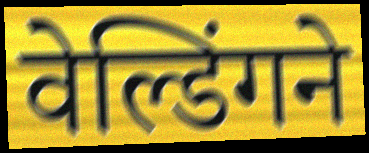
वेल्डिंगने